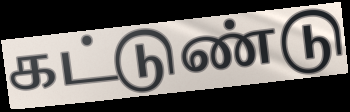
கட்டுண்டு